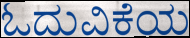
ಓದುವಿಕೆಯ